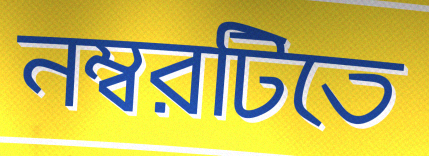
নম্বরটিতে